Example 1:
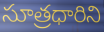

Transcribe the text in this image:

సూత్రధారిని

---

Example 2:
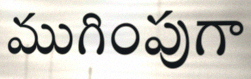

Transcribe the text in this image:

ముగింపుగా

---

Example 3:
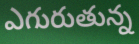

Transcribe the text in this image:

ఎగురుతున్న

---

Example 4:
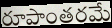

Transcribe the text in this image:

రూపాంతరమే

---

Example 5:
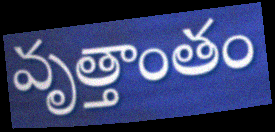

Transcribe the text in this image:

వృత్తాంతం